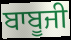
ਬਾਬੂਜੀ